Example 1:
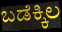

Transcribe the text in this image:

ಬಡೆಕ್ಕಿಲ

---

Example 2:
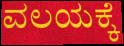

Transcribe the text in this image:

ವಲಯಕ್ಕೆ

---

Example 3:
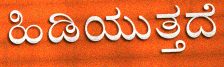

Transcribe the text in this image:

ಹಿಡಿಯುತ್ತದೆ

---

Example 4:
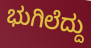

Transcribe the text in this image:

ಭುಗಿಲೆದ್ದು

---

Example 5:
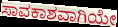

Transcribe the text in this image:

ಸಾವಕಾಶವಾಗಿಯೇ